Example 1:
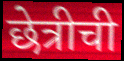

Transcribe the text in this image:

छेत्रीची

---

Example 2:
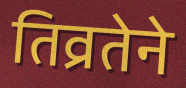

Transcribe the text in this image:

तिव्रतेने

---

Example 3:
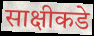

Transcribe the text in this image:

साक्षीकडे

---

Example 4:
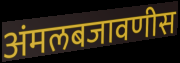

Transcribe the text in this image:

अंमलबजावणीस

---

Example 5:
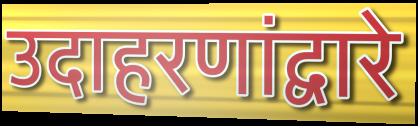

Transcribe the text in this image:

उदाहरणांद्वारे